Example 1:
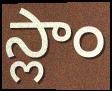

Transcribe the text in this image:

స్లాం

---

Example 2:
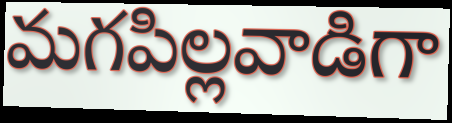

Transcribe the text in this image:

మగపిల్లవాడిగా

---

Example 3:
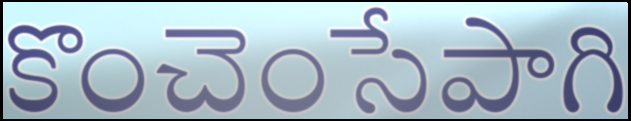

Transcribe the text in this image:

కొంచెంసేపాగి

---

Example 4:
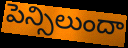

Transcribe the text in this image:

పెన్సిలుందా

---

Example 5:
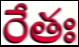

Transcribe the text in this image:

రేతః